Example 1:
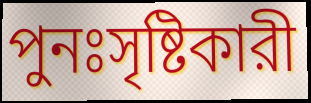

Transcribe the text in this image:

পুনঃসৃষ্টিকারী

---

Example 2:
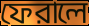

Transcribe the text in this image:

ফেরালে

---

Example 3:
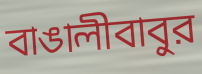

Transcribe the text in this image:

বাঙালীবাবুর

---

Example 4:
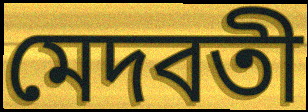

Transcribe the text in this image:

মেদবতী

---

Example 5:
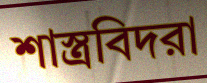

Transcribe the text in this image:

শাস্ত্রবিদরা